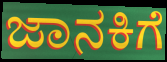
ಜಾನಕಿಗೆ